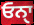
ਓਨਾੑ